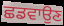
ਛਡਵਾਉਣ